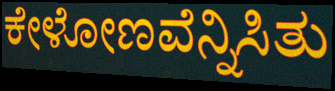
ಕೇಳೋಣವೆನ್ನಿಸಿತು